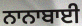
ਨਾਨਾਬਾਈ